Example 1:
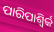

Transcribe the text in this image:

ପାରିପାଶ୍ୱିର୍କ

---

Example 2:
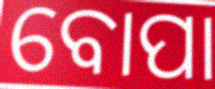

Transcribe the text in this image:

ବୋପା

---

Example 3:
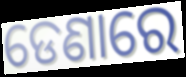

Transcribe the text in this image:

ଡେଣାରେ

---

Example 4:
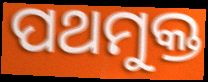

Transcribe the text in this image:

ପଥମୁକ୍ତ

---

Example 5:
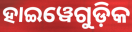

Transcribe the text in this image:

ହାଇୱେଗୁଡ଼ିକ